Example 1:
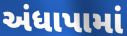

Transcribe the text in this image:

અંધાપામાં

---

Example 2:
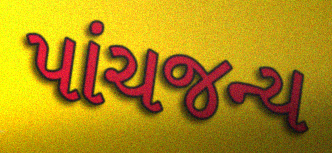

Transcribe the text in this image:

પાંચજન્ય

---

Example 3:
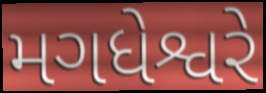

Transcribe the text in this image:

મગધેશ્વરે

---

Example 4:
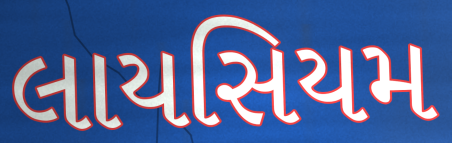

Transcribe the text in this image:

લાયસિયમ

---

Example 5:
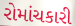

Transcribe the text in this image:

રોમાંચકારી